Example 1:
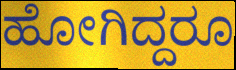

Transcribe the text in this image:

ಹೋಗಿದ್ದರೂ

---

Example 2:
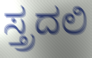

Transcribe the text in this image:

ಸ್ತ್ರದಲಿ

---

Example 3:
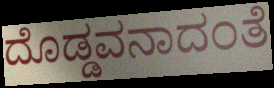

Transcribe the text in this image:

ದೊಡ್ಡವನಾದಂತೆ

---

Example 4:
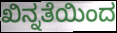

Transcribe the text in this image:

ಖಿನ್ನತೆಯಿಂದ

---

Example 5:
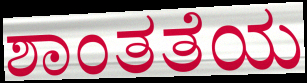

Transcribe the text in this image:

ಶಾಂತತೆಯ